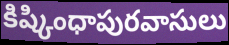
కిష్కింధాపురవాసులు